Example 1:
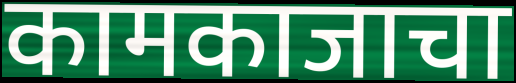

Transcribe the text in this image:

कामकाजाचा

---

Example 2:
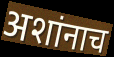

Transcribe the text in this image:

अशांनाच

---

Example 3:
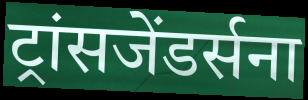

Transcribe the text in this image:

ट्रांसजेंडर्सना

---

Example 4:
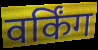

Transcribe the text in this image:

वर्किंग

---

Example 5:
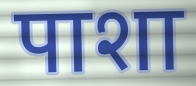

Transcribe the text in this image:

पाशा